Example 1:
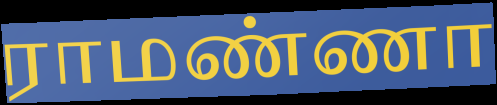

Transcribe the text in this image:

ராமண்ணா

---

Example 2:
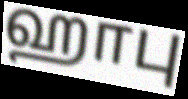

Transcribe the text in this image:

ஹாபு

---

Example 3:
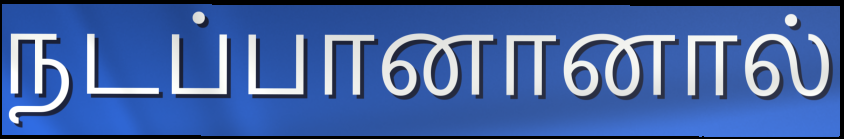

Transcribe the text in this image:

நடப்பானானால்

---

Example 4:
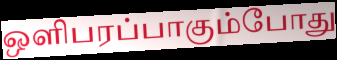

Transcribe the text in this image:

ஒளிபரப்பாகும்போது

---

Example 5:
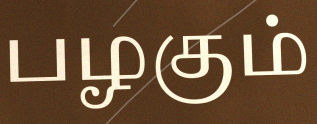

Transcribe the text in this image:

பழகும்